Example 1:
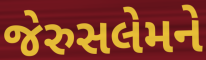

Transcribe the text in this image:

જેરુસલેમને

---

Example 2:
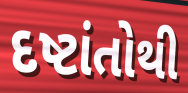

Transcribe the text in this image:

દષ્ટાંતોથી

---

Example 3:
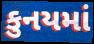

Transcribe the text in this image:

કુનયમાં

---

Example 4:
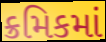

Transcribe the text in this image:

ક્રમિકમાં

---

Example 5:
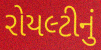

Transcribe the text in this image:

રોયલ્ટીનું